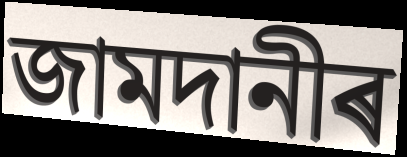
জামদানীৰ